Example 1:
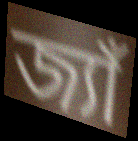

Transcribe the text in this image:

জ্যাঁ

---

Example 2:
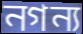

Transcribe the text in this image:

নগন্য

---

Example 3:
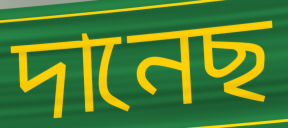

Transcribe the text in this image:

দানেছ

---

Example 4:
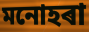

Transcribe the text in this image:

মনোহৰা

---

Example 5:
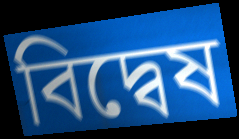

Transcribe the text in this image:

বিদ্বেষ